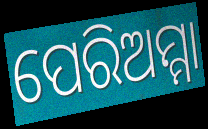
ପେରିଅମ୍ମା